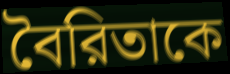
বৈরিতাকে